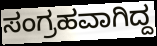
ಸಂಗ್ರಹವಾಗಿದ್ದ